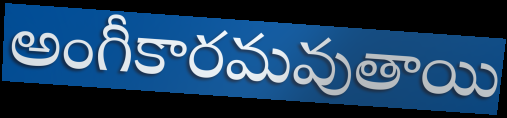
అంగీకారమవుతాయి